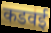
कडवई